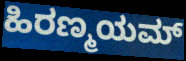
ಹಿರಣ್ಮಯಮ್